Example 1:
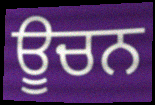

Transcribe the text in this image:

ਊਚਨ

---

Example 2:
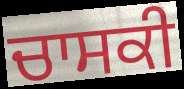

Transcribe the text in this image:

ਚਾਸਕੀ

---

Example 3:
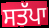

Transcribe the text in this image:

ਸਤੱਪਾ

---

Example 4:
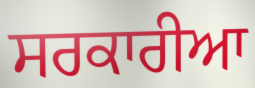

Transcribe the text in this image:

ਸਰਕਾਰੀਆ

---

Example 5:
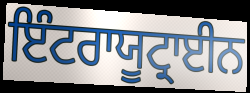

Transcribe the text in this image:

ਇੰਟਰਾਯੂਟ੍ਰਾਈਨ